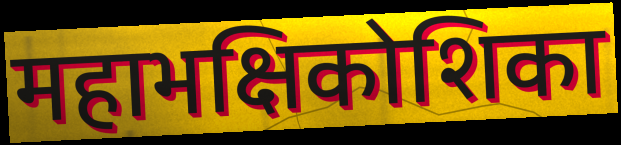
महाभक्षिकोशिका